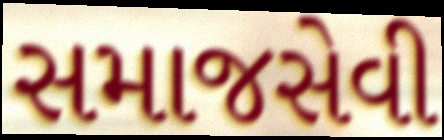
સમાજસેવી